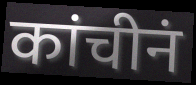
कांचीनं